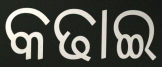
କଢାଇ